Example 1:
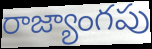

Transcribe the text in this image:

రాజ్యాంగపు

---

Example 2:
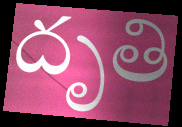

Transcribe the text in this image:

దృతి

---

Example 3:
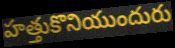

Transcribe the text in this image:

హత్తుకొనియుందురు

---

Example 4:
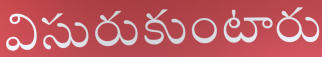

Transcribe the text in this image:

విసురుకుంటారు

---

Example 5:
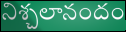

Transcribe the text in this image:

నిశ్చలానందం